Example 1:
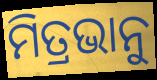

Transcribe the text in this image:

ମିତ୍ରଭାନୁ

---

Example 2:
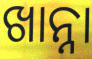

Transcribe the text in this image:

ଖାନ୍ନା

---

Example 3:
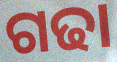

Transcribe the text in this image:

ଗଢା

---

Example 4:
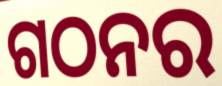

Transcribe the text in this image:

ଗଠନର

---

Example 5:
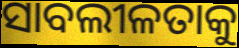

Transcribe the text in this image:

ସାବଲୀଳତାକୁ